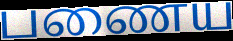
பணைய